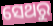
ସେଥରୁ